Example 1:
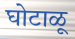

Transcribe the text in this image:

घोटाळू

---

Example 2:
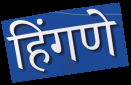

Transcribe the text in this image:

हिंगणे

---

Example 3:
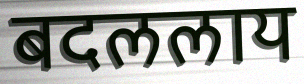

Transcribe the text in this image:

बदललाय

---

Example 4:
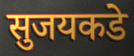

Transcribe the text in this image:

सुजयकडे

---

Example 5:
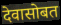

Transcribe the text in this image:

देवासोबत